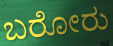
ಬರೋರು